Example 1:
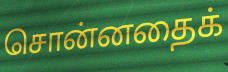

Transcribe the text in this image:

சொன்னதைக்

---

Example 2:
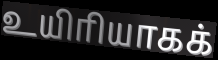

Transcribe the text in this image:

உயிரியாகக்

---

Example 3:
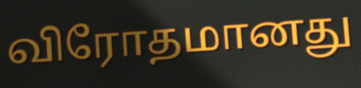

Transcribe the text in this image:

விரோதமானது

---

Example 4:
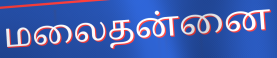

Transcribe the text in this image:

மலைதன்னை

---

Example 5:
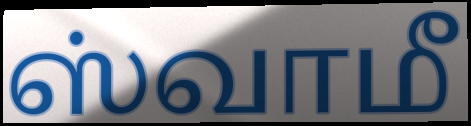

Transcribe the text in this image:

ஸ்வாமீ